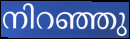
നിറഞ്ഞു